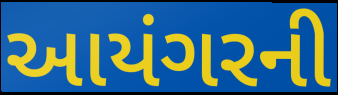
આયંગરની